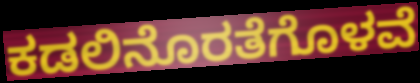
ಕಡಲಿನೊರತೆಗೊಳವೆ